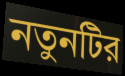
নতুনটির